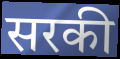
सरकी